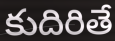
కుదిరితే